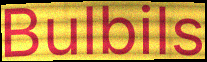
Bulbils